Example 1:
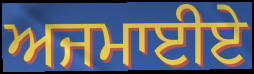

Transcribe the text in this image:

ਅਜਮਾਈਏ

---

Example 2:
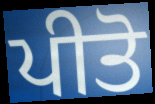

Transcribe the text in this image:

ਪੀਤੋ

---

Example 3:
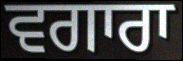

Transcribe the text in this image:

ਵਗਾਰਾ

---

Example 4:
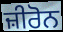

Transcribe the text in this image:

ਜ਼ੀਰੋਨ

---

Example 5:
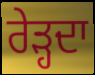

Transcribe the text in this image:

ਰੇੜ੍ਹਦਾ